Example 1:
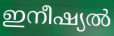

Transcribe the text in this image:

ഇനീഷ്യൽ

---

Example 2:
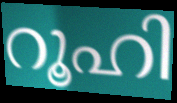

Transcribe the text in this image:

റൂഹി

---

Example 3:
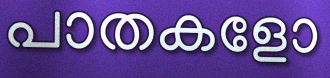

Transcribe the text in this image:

പാതകളോ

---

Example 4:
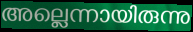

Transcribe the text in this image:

അല്ലെന്നായിരുന്നു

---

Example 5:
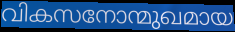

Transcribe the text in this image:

വികസനോന്മുഖമായ